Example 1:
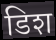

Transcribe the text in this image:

डिश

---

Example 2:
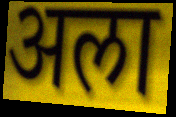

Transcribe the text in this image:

अला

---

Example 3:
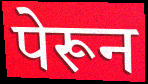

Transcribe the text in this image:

पेरून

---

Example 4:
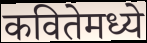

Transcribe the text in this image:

कवितेमध्ये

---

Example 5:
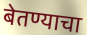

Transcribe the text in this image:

बेतण्याचा